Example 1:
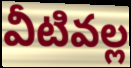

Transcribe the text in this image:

వీటివల్ల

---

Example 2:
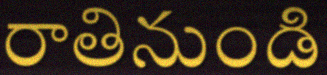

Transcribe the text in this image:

రాతినుండి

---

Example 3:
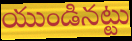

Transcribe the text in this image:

యుండినట్టు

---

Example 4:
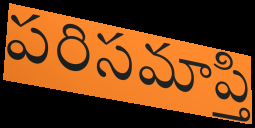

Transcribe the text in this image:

పరిసమాప్తి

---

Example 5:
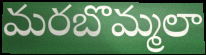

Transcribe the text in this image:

మరబొమ్మలా